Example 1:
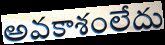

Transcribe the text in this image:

అవకాశంలేదు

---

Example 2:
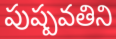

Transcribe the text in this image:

పుష్పవతిని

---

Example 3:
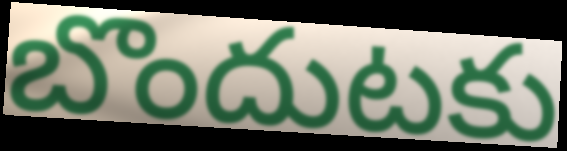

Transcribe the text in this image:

బొందుటకు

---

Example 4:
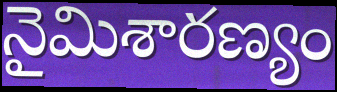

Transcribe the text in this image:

నైమిశారణ్యం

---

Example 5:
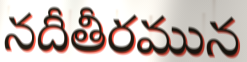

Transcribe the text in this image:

నదీతీరమున